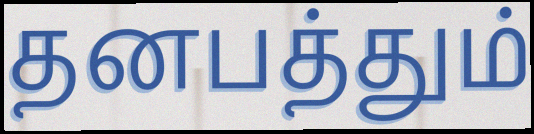
தனபத்தும்